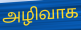
அழிவாக